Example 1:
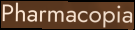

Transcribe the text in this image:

Pharmacopia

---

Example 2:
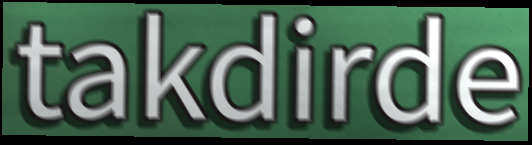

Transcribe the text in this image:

takdirde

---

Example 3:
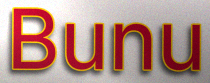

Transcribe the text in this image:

Bunu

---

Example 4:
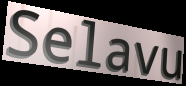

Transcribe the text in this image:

Selavu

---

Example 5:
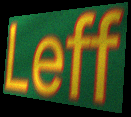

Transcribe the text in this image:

Leff